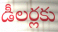
డీలర్లకు